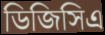
ডিজিসিএ